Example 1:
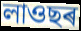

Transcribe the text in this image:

লাওছৰ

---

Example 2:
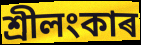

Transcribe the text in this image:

শ্ৰীলংকাৰ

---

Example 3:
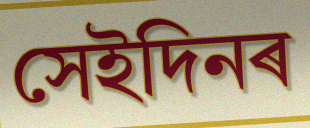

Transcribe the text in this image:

সেইদিনৰ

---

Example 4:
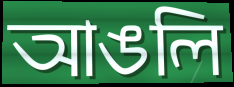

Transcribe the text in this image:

আঙলি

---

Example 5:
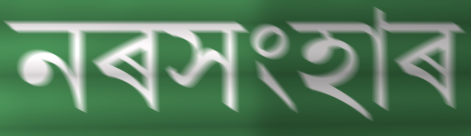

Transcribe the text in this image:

নৰসংহাৰ